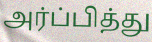
அர்ப்பித்து